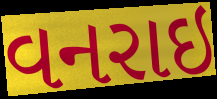
વનરાઇ